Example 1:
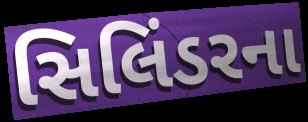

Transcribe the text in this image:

સિલિંડરના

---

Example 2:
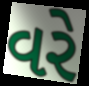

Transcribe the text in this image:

વરે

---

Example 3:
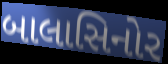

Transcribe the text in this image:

બાલાસિનોર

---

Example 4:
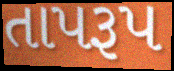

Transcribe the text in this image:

તાપરૂપ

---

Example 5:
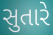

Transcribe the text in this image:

સુતારે